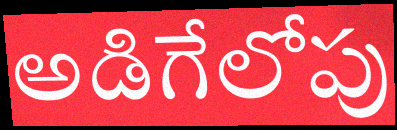
అడిగేలోపు